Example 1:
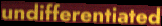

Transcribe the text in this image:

undifferentiated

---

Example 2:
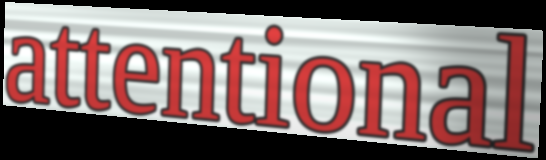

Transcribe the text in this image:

attentional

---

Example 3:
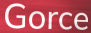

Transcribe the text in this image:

Gorce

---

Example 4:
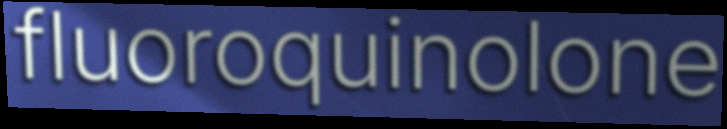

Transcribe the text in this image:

fluoroquinolone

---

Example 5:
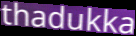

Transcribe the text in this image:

thadukka